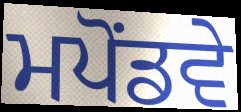
ਮਪੋਂਡਵੇ